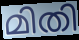
മിതി